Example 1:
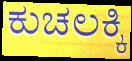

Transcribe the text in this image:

ಕುಚಲಕ್ಕಿ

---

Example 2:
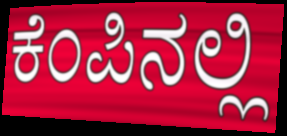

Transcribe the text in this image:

ಕೆಂಪಿನಲ್ಲಿ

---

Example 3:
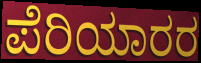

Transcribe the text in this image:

ಪೆರಿಯಾರರ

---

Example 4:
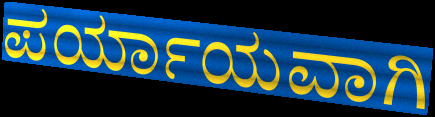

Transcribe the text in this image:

ಪರ್ಯಾಯವಾಗಿ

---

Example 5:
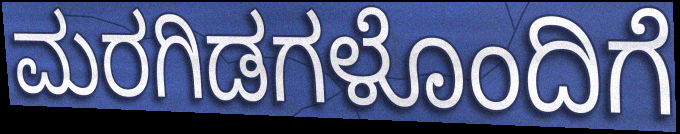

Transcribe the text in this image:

ಮರಗಿಡಗಳೊಂದಿಗೆ